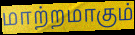
மாற்றமாகும்